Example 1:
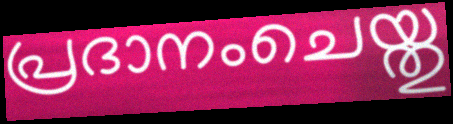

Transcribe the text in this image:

പ്രദാനംചെയ്തു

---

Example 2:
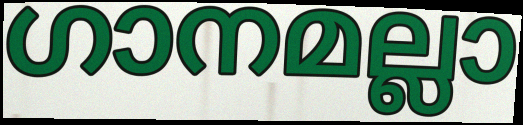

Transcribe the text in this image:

ഗാനമല്ലാ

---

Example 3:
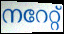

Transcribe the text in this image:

നറേറ്റ്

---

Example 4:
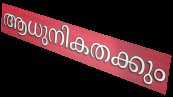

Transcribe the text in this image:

ആധുനികതക്കും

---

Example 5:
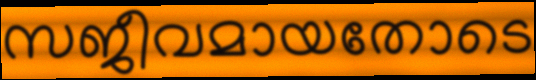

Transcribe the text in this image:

സജീവമായതോടെ